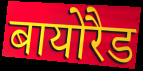
बायोरैड